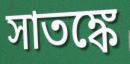
সাতঙ্কে